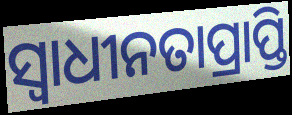
ସ୍ୱାଧୀନତାପ୍ରାପ୍ତି